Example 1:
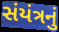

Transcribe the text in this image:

સંયંત્રનું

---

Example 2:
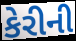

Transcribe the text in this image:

કેરીની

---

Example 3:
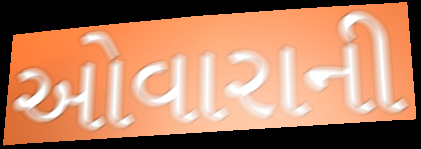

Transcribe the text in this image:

ઓવારાની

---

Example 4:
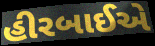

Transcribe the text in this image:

હીરબાઈએ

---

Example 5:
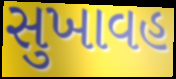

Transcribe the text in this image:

સુખાવહ